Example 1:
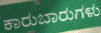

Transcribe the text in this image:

ಕಾರುಬಾರುಗಳು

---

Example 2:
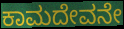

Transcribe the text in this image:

ಕಾಮದೇವನೇ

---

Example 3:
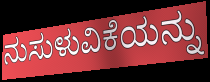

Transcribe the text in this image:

ನುಸುಳುವಿಕೆಯನ್ನು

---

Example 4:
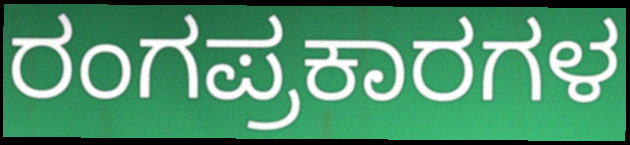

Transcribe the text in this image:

ರಂಗಪ್ರಕಾರಗಳ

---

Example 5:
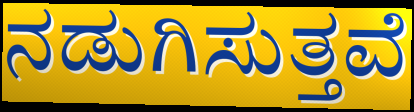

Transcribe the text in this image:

ನಡುಗಿಸುತ್ತವೆ